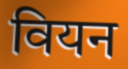
वियन